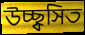
উচ্ছ্বসিত